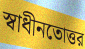
স্বাধীনতোত্তর